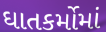
ઘાતકર્મોમાં